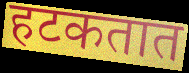
हटकतात